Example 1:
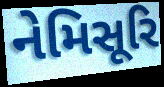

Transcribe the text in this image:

નેમિસૂરિ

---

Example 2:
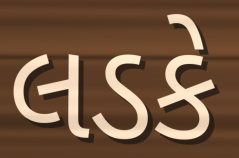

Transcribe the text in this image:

લડકે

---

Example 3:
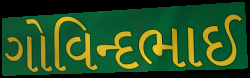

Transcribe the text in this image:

ગોવિન્દભાઈ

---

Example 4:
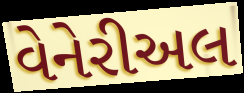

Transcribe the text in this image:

વેનેરીઅલ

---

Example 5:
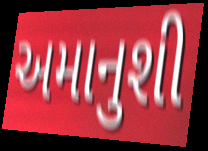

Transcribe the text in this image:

અમાનુશી